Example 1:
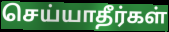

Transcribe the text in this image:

செய்யாதீர்கள்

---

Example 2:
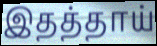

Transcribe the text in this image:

இதத்தாய்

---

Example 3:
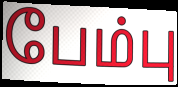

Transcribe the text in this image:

பேம்பு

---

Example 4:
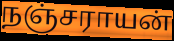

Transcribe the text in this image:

நஞ்சராயன்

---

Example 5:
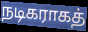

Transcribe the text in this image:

நடிகராகத்